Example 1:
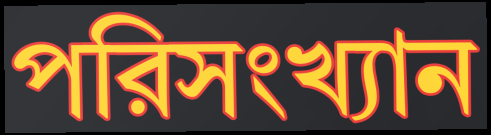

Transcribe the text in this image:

পরিসংখ্যান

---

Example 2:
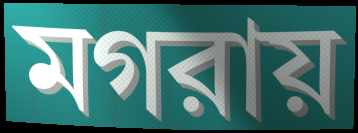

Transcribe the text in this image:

মগরায়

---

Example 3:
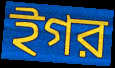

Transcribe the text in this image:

ইগর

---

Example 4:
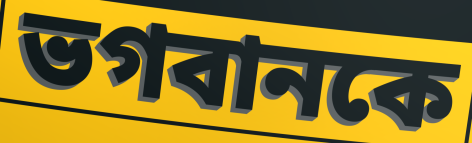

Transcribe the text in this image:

ভগবানকে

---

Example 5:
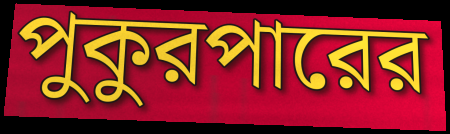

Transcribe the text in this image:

পুকুরপারের